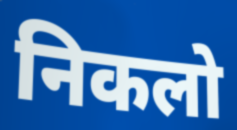
निकलो